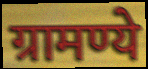
ग्रामण्ये